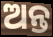
ଅନ୍ତ